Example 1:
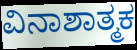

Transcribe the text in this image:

ವಿನಾಶಾತ್ಮಕ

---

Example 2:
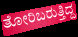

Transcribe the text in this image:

ತೋರಿಬರುತ್ತಿದ್ದ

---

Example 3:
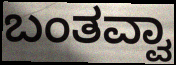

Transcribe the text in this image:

ಬಂತವ್ವಾ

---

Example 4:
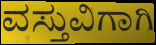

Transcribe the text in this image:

ವಸ್ತುವಿಗಾಗಿ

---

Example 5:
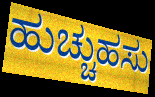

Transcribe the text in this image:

ಹುಚ್ಚುಹಸು